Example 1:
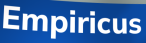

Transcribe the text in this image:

Empiricus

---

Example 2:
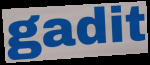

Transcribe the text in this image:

gadit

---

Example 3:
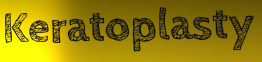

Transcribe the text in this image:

Keratoplasty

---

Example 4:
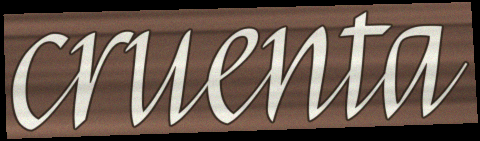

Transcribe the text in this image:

cruenta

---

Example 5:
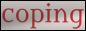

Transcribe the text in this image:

coping